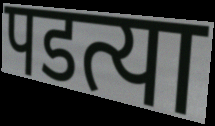
पडत्या